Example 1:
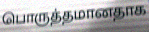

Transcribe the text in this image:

பொருத்தமானதாக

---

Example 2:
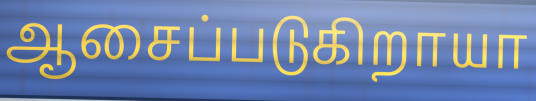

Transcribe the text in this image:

ஆசைப்படுகிறாயா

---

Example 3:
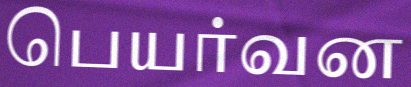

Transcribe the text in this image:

பெயர்வன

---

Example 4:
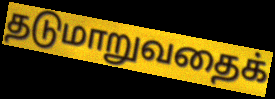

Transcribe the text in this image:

தடுமாறுவதைக்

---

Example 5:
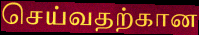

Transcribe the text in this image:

செய்வதற்கான